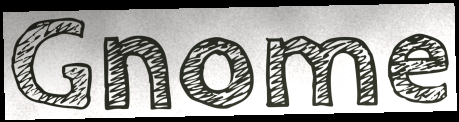
Gnome